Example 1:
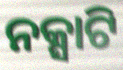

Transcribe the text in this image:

ନକ୍ସାଟି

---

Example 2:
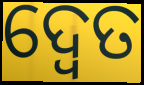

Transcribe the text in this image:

ଦ୍ବେତ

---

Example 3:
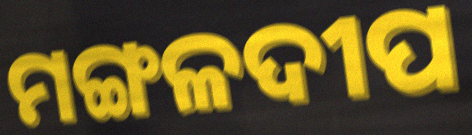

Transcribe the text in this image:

ମଙ୍ଗଳଦୀପ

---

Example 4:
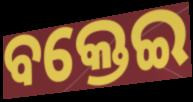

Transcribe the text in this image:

ବକ୍ତେଇ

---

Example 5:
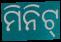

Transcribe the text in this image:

ମିନିଟ୍